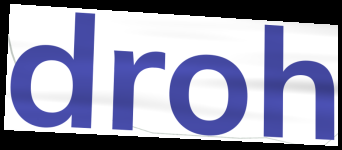
droh